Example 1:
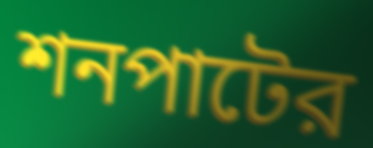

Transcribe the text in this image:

শনপাটের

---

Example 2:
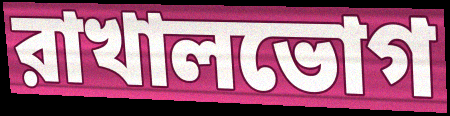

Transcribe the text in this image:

রাখালভোগ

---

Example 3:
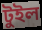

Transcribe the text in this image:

টুইল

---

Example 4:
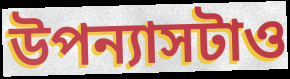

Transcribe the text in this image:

উপন্যাসটাও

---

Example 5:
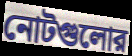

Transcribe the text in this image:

নোটগুলোর